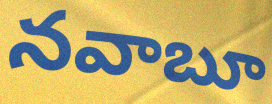
నవాబూ